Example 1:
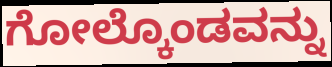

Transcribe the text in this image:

ಗೋಲ್ಕೊಂಡವನ್ನು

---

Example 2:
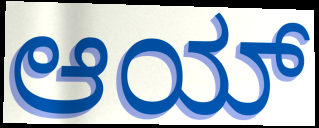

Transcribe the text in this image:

ಆಯ್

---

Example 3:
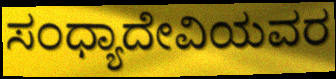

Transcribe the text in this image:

ಸಂಧ್ಯಾದೇವಿಯವರ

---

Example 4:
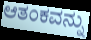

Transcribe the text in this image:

ಆತಂಕವನ್ನು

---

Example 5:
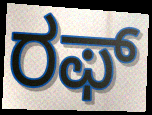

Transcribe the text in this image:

ರಫ್